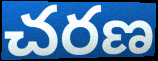
చరణ